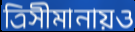
ত্রিসীমানায়ও